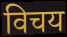
विचय